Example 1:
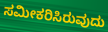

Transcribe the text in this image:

ಸಮೀಕರಿಸಿರುವುದು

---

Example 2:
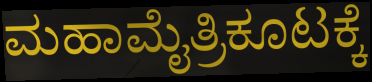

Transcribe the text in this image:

ಮಹಾಮೈತ್ರಿಕೂಟಕ್ಕೆ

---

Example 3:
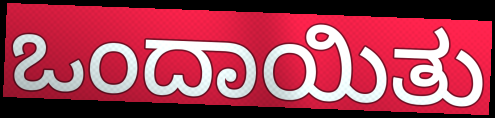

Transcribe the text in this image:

ಒಂದಾಯಿತು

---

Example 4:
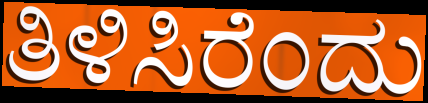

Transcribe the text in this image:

ತಿಳಿಸಿರೆಂದು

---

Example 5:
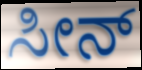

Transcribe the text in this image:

ಸೀನ್